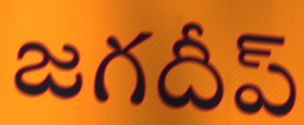
జగదీప్